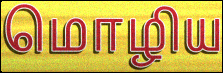
மொழிய